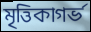
মৃত্তিকাগর্ভ